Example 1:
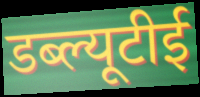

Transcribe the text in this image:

डब्ल्यूटीई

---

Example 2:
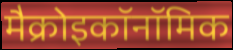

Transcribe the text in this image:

मैक्रोइकॉनॉमिक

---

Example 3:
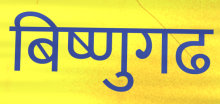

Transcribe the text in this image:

बिष्णुगढ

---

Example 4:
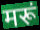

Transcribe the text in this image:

मरूं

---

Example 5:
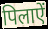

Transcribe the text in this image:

पिलाऐं